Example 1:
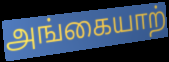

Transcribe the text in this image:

அங்கையாற்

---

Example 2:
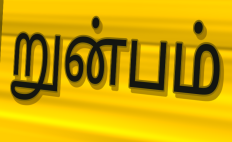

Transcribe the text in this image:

றுன்பம்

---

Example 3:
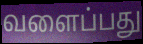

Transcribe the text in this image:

வளைப்பது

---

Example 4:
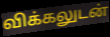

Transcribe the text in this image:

விக்கலுடன்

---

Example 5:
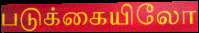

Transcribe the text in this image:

படுக்கையிலோ